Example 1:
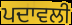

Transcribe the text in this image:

ਪਦਾਵਲੀ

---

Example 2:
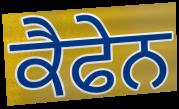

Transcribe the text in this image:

ਕੈਫੇਨ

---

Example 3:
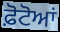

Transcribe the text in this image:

ਫ਼ੋਟੋਆਂ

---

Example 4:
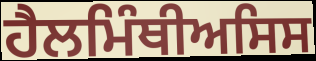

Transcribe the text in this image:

ਹੈਲਮਿੰਥੀਅਸਿਸ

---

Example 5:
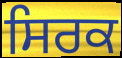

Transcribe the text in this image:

ਸਿਰਕ